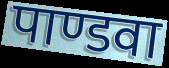
पाण्डवा